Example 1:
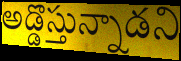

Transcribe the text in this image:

అడ్డొస్తున్నాడని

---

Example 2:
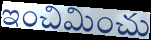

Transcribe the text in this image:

ఇంచిమించు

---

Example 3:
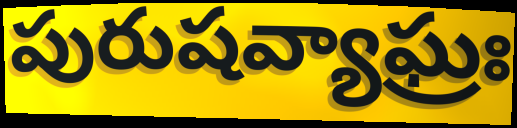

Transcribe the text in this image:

పురుషవ్యాఘ్రః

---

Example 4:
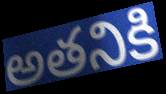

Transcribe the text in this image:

అతనికి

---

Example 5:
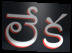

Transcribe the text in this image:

లేక